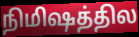
நிமிஷத்தில